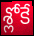
శ్లోకే